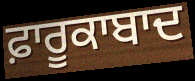
ਫ਼ਾਰੂਕਾਬਾਦ